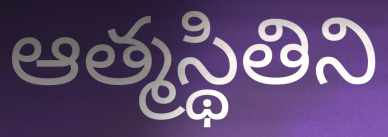
ఆత్మస్థితిని